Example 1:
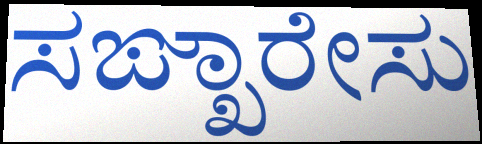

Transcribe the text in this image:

ಸಙ್ಖಾರೇಸು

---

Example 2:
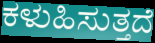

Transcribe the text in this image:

ಕಳುಹಿಸುತ್ತದೆ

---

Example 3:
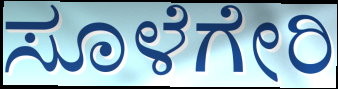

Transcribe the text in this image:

ಸೂಳೆಗೇರಿ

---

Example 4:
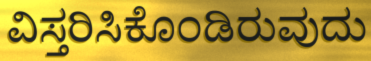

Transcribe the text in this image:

ವಿಸ್ತರಿಸಿಕೊಂಡಿರುವುದು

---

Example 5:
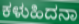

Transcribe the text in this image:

ಕಳುಹಿದನಾ